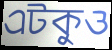
এটকুও